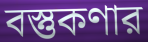
বস্তুকণার